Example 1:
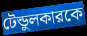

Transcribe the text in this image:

টেন্ডুলকারকে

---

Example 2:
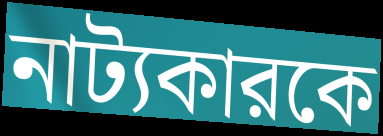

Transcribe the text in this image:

নাট্যকারকে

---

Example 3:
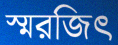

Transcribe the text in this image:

স্মরজিৎ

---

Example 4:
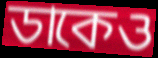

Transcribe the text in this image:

ডাকেও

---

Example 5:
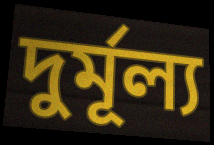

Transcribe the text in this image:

দুর্মূল্য